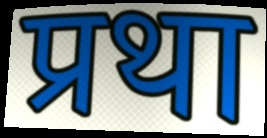
प्रथा